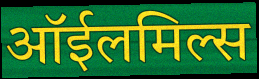
ऑईलमिल्स